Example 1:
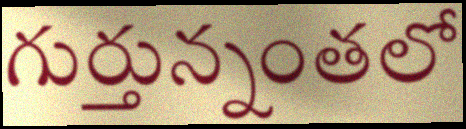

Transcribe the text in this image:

గుర్తున్నంతలో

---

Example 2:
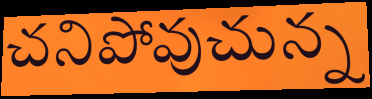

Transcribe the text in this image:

చనిపోవుచున్న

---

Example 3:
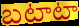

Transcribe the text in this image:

బటాటా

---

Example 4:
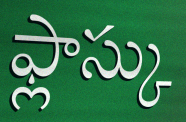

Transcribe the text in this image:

ఫ్లాస్కు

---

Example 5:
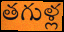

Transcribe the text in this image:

తగుళ్ల